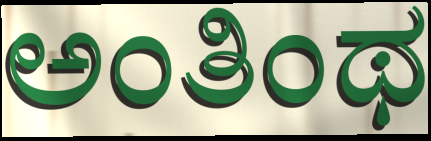
ಅಂತಿಂಥ